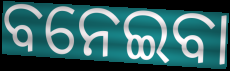
ବନେଇବା